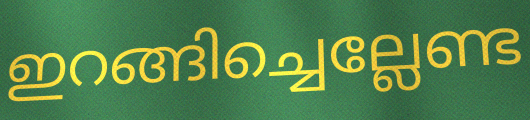
ഇറങ്ങിച്ചെല്ലേണ്ട